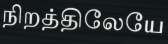
நிறத்திலேயே